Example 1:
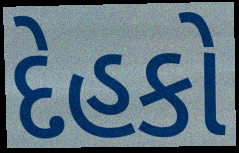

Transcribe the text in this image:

દેહકો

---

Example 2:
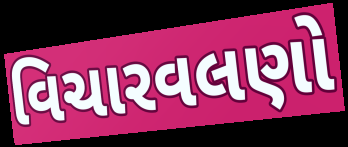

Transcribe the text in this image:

વિચારવલણો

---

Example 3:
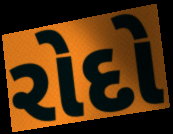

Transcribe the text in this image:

રોદો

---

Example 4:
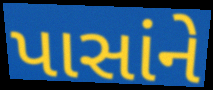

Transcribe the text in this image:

પાસાંને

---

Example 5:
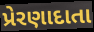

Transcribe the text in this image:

પ્રેરણાદાતા